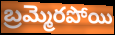
బ్రమ్మెరపోయి